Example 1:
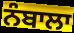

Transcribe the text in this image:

ਨੰਬਾਲਾ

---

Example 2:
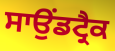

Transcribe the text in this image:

ਸਾਉਂਡਟ੍ਰੈਕ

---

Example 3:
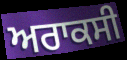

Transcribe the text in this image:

ਅਰਾਕਸੀ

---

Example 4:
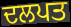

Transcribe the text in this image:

ਦਲਪਤ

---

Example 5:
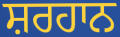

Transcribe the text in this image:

ਸ਼ਰਹਾਨ